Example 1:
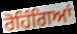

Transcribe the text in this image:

ਰੋਹਿੰਗਿਆਂ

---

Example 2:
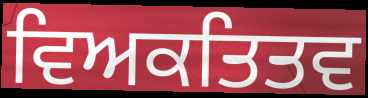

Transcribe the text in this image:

ਵਿਅਕਤਿਤਵ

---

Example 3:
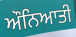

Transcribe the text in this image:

ਔਨਿਆਤੀ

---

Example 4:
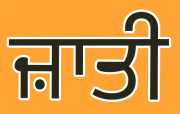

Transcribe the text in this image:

ਜ਼ਾਤੀ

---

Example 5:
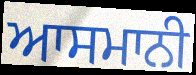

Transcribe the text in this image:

ਆਸਮਾਨੀ